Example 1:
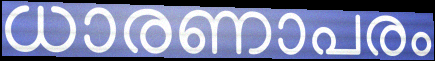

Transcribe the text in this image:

ധാരണാപരം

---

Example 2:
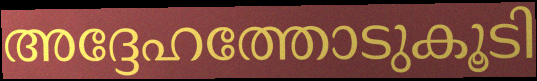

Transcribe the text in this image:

അദ്ദേഹത്തോടുകൂടി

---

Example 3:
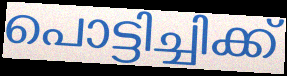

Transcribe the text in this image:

പൊട്ടിച്ചിക്ക്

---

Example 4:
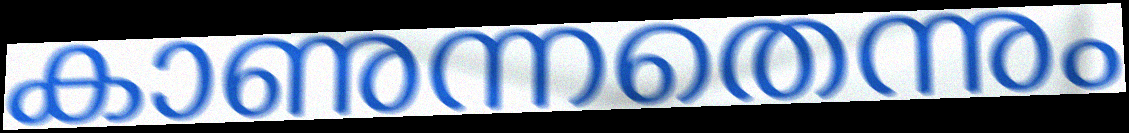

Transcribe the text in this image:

കാണുന്നതെന്നും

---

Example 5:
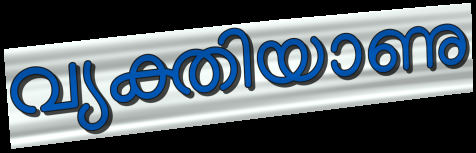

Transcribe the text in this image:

വ്യക്തിയാണു